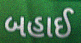
બહાઈ